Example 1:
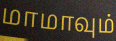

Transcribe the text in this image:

மாமாவும்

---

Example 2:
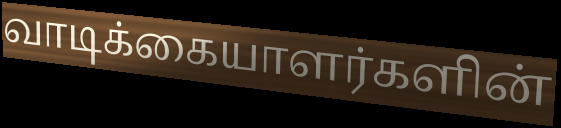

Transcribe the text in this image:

வாடிக்கையாளர்களின்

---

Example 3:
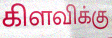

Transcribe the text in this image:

கிளவிக்கு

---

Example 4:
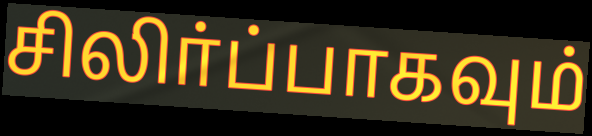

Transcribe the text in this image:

சிலிர்ப்பாகவும்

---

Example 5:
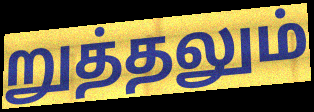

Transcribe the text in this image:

றுத்தலும்